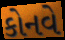
કોનવે